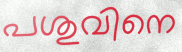
പശുവിനെ